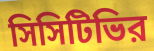
সিসিটিভির